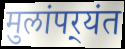
मुलांपर्यंत